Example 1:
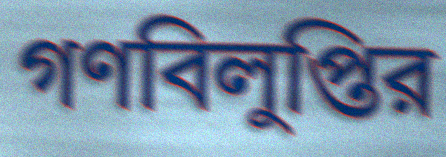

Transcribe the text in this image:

গণবিলুপ্তির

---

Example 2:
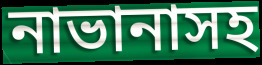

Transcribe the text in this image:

নাভানাসহ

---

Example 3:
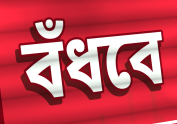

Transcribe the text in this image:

বঁধবে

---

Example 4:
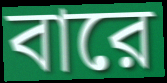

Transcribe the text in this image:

বারে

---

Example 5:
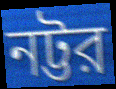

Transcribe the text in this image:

নট্টর